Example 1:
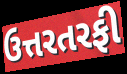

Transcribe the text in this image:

ઉત્તરતરફી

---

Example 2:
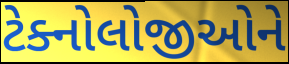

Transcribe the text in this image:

ટેક્નોલોજીઓને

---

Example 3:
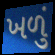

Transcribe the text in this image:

ખળું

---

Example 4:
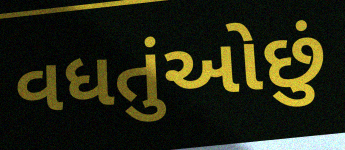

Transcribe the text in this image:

વધતુંઓછું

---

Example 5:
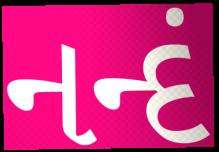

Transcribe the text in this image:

નન્દં